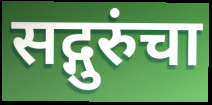
सद्गुरुंचा